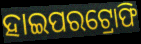
ହାଇପରଟ୍ରୋଫି